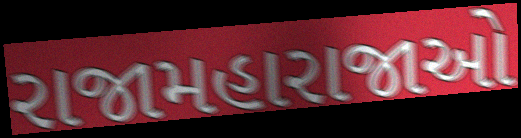
રાજામહારાજાઓ